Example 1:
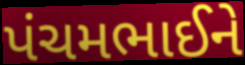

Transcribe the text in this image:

પંચમભાઈને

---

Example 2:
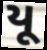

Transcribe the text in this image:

યૂ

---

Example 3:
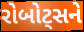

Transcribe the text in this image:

રોબોટ્સને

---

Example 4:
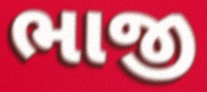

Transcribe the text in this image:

ભાજી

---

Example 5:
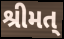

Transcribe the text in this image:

શ્રીમત્